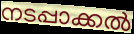
നടപ്പാക്കൽ